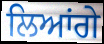
ਲਿਆਂਗੇ